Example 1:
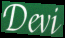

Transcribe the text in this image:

Devi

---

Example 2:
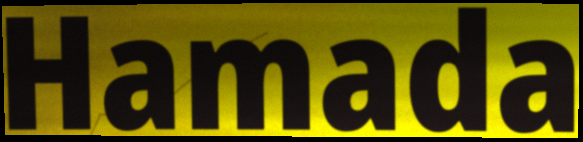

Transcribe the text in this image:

Hamada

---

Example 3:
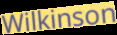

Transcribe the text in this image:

Wilkinson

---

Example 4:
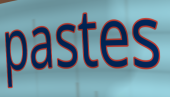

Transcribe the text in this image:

pastes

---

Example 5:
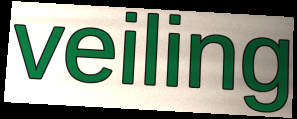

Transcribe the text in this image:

veiling